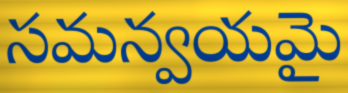
సమన్వయమై